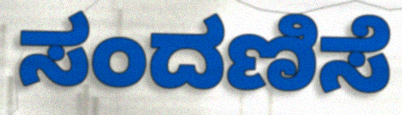
ಸಂದಣಿಸೆ